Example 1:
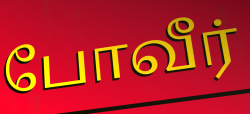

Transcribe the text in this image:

போவீர்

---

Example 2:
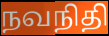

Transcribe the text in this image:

நவநிதி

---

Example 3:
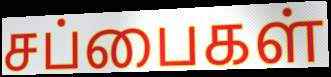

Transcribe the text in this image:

சப்பைகள்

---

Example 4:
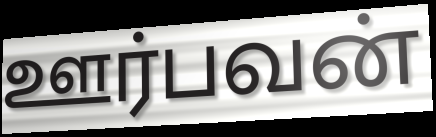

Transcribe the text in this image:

ஊர்பவன்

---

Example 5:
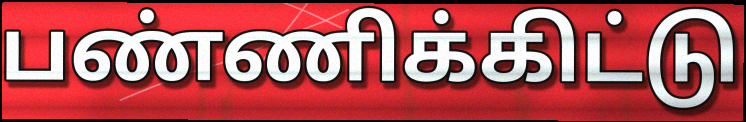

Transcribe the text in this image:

பண்ணிக்கிட்டு